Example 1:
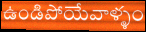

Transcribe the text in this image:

ఉండిపోయేవాళ్ళం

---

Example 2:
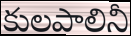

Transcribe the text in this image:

కులపాలినీ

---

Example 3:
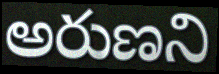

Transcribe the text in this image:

అరుణని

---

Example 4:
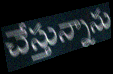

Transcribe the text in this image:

చేస్తున్నాను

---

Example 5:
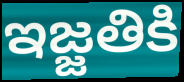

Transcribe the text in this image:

ఇజ్జతికి